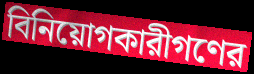
বিনিয়োগকারীগণের